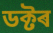
ডক্টৰ